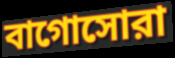
বাগোসোরা